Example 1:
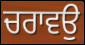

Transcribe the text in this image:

ਚਰਾਵਉ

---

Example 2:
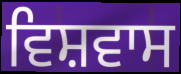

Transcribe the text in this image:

ਵਿਸ਼ਵਾਸ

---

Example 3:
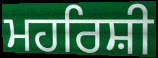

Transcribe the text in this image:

ਮਹਰਿਸ਼ੀ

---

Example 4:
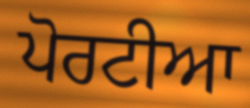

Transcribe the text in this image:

ਪੋਰਟੀਆ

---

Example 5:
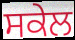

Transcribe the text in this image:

ਸਕੇਲ